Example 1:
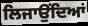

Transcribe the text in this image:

ਲਿਜਾਉਂਦਿਆਂ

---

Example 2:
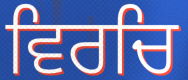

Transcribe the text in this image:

ਵਿਰਚਿ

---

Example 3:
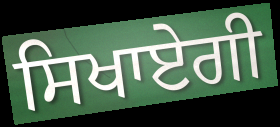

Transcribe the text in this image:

ਸਿਖਾਏਗੀ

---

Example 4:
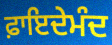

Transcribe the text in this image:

ਫ਼ਾਇਦੇਮੰਦ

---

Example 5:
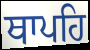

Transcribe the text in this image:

ਥਾਪਹਿ